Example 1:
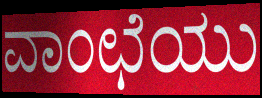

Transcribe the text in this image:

ವಾಂಛೆಯು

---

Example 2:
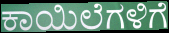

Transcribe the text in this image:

ಕಾಯಿಲೆಗಳಿಗೆ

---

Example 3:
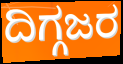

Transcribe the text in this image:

ದಿಗ್ಗಜರ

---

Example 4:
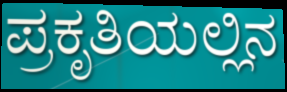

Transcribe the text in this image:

ಪ್ರಕೃತಿಯಲ್ಲಿನ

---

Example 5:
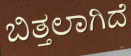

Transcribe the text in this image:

ಬಿತ್ತಲಾಗಿದೆ